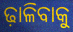
ଢ଼ାଳିବାକୁ